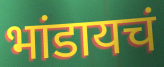
भांडायचं